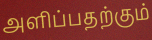
அளிப்பதற்கும்